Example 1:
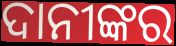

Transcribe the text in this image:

ଦାନୀଙ୍କର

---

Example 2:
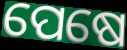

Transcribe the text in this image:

ପେଷେ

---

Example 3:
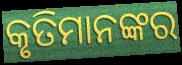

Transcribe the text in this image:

କୃତିମାନଙ୍କର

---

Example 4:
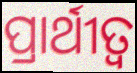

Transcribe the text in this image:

ପ୍ରାର୍ଥୀତ୍ଵ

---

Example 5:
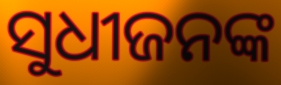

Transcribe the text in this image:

ସୁଧୀଜନଙ୍କ